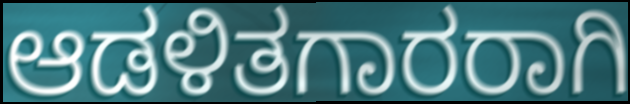
ಆಡಳಿತಗಾರರಾಗಿ